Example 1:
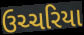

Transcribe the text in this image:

ઉચ્ચરિયા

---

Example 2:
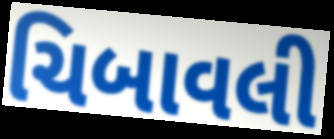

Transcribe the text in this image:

ચિબાવલી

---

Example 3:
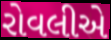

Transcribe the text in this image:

રોવલીએ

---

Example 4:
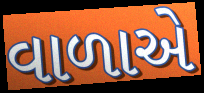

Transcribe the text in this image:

વાળાએ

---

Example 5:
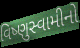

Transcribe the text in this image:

વિષ્ણુસ્વામીનો